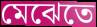
মেঝেতে